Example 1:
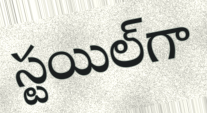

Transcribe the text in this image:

స్టయిల్‌గా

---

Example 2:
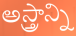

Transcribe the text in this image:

అస్త్రాన్ని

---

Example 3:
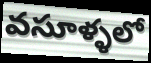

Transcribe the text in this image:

వసూళ్ళలో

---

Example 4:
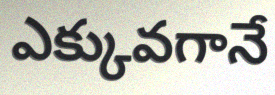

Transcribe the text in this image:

ఎక్కువగానే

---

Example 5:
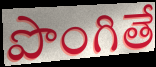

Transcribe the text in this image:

పొంగితే